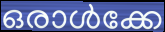
ഒരാൾക്കേ